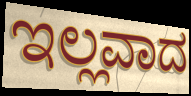
ಇಲ್ಲವಾದ